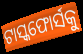
ଟାସ୍କଫୋର୍ସକୁ